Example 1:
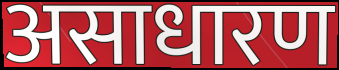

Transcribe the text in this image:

असाधारण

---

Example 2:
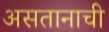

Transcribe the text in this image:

असतानाची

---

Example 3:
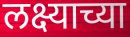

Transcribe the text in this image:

लक्ष्याच्या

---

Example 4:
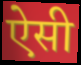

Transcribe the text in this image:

ऐसी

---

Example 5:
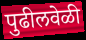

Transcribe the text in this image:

पुढीलवेळी